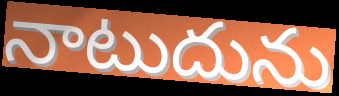
నాటుదును